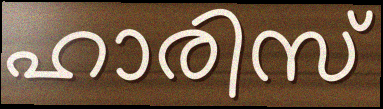
ഹാരിസ്